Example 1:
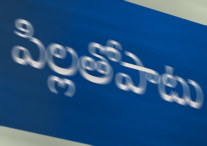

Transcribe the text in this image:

పిల్లతోపాటు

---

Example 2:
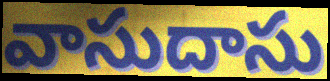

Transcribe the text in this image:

వాసుదాసు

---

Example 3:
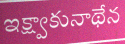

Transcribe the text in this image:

ఇక్ష్వాకునాథేన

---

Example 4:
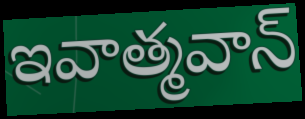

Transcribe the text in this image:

ఇవాత్మవాన్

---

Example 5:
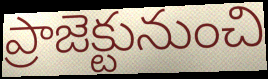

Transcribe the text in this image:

ప్రాజెక్టునుంచి